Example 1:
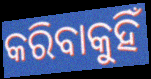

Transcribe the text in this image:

କରିବାକୁହିଁ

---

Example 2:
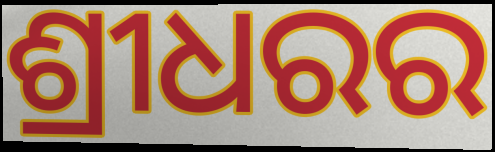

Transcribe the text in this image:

ଶ୍ରୀଧରର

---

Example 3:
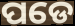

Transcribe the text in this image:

ପଡେ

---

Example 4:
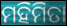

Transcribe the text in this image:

ମହିମିତା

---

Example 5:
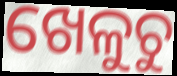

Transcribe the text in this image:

ଖେଳୁଚୁ